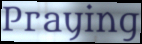
Praying